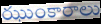
ఝుంకారాలు